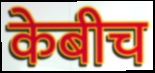
केबीच